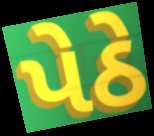
પેઠે